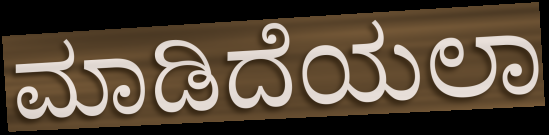
ಮಾಡಿದೆಯಲಾ